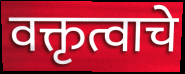
वक्तृत्वाचे